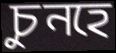
চুনহে